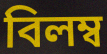
বিলম্ব